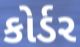
કોર્ડર